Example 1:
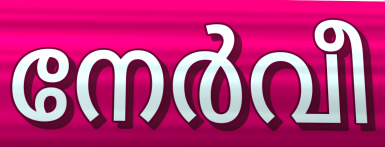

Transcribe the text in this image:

നേർവീ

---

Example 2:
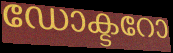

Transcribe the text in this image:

ഡോക്ടറോ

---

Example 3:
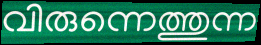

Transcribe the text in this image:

വിരുന്നെത്തുന്ന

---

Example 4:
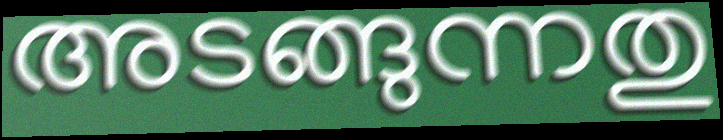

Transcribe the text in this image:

അടങ്ങുന്നതു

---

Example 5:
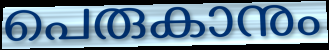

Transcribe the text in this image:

പെരുകാനും